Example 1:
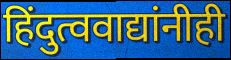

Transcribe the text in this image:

हिंदुत्ववाद्यांनीही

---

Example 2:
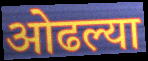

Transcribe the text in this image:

ओढल्या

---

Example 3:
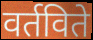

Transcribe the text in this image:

वर्तविते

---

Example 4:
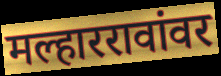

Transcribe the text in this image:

मल्हाररावांवर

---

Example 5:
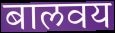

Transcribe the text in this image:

बालवय